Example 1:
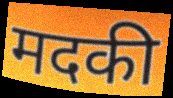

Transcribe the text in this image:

मदकी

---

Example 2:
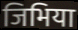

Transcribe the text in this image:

जिभिया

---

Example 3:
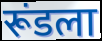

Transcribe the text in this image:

रूंडला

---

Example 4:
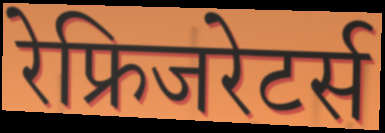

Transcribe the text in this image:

रेफ्रिजरेटर्स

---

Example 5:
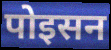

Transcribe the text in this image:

पोइसन